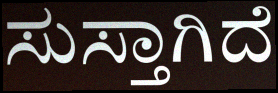
ಸುಸ್ತಾಗಿದೆ